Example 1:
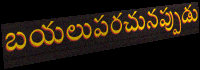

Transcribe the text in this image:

బయలుపరచునప్పుడు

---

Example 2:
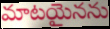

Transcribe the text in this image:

మాటయైనను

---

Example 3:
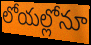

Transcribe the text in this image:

లోయల్లోనూ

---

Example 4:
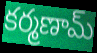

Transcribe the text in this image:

కర్మణామ్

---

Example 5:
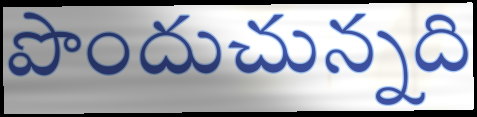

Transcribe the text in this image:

పొందుచున్నది